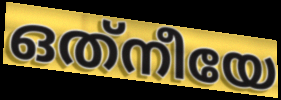
ഒത്‌നീയേ